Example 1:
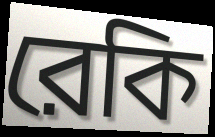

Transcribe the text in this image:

রেকি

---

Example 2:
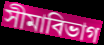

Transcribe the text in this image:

সীমাবিভাগ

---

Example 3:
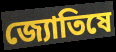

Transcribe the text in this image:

জ্যোতিষে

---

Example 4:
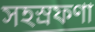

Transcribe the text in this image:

সহস্রফণা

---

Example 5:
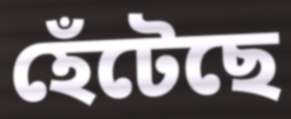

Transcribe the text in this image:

হেঁটেছে